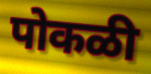
पोकळी